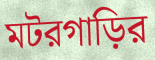
মটরগাড়ির